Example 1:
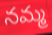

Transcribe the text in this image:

నమ్మ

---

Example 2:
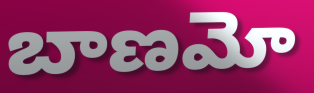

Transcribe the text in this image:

బాణమో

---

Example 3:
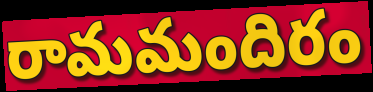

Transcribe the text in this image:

రామమందిరం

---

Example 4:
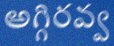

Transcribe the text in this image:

అగ్గిరవ్వ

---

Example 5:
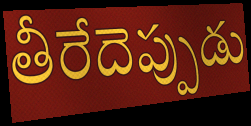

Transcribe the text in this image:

తీరేదెప్పుడు